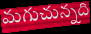
మగుచున్నది